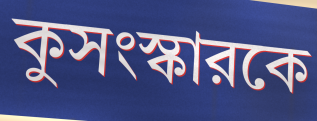
কুসংস্কারকে